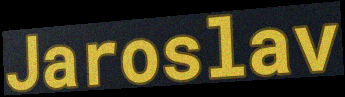
Jaroslav